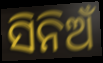
ସିନିଅଁ